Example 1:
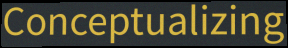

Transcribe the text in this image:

Conceptualizing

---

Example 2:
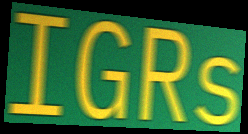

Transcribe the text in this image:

IGRs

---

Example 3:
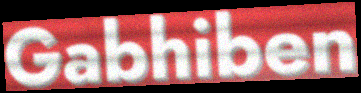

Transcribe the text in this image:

Gabhiben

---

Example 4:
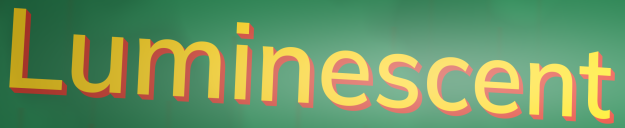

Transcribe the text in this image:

Luminescent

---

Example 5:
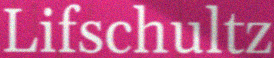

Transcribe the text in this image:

Lifschultz